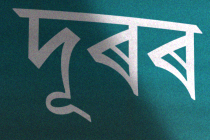
দূৰৰ